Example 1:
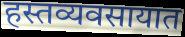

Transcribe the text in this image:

हस्तव्यवसायात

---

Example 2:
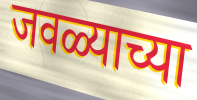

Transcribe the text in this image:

जवळ्याच्या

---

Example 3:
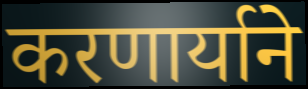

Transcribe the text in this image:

करणार्याने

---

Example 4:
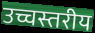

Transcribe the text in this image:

उच्चस्तरीय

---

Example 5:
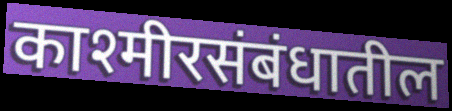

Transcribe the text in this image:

काश्मीरसंबंधातील